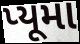
પ્યૂમા